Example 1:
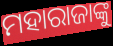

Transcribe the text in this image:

ମହାରାଜାଙ୍କୁ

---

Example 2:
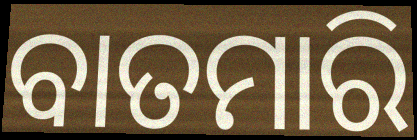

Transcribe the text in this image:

ବାତମାରି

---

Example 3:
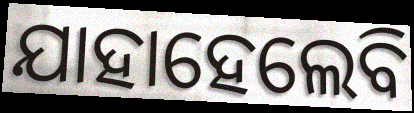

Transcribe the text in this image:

ଯାହାହେଲେବି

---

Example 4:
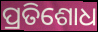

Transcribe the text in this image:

ପ୍ରତିଶୋଧ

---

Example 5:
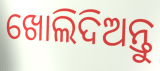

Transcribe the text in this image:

ଖୋଲିଦିଅନ୍ତୁ